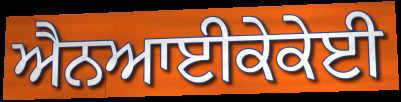
ਐਨਆਈਕੇਕੇਈ